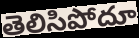
తెలిసిపోదూ